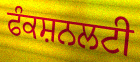
ਫੰਕਸ਼ਨਲਟੀ